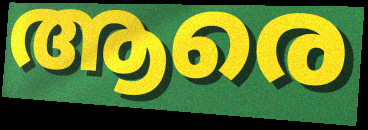
ആരെ